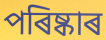
পৰিষ্কাৰ